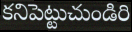
కనిపెట్టుచుండిరి